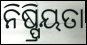
ନିଷ୍ପ୍ରିୟତା